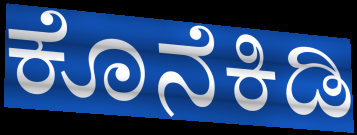
ಕೊನೆಕಿಡಿ